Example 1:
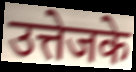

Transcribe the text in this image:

उत्तेजके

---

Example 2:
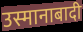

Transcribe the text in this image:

उस्मानाबादी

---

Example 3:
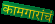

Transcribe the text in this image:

कामगारांचं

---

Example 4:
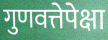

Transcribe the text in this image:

गुणवत्तेपेक्षा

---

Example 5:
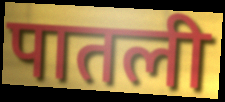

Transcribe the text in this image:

पातली